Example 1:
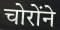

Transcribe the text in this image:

चोरोंने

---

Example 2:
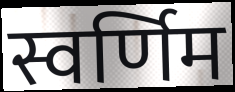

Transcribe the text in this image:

स्‍वर्णिम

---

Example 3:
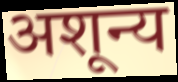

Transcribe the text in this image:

अशून्य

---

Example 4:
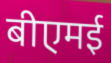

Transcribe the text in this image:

बीएमई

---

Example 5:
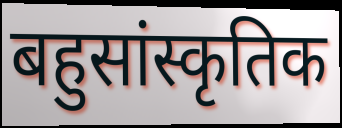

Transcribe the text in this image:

बहुसांस्कृतिक